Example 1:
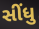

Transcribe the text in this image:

સીંધુ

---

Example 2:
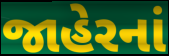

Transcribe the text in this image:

જાહેરનાં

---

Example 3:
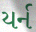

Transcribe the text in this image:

યર્ન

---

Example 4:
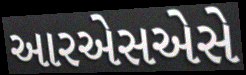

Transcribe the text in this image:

આરએસએસે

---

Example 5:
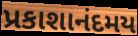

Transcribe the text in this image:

પ્રકાશાનંદમય